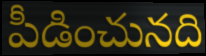
పీడించునది